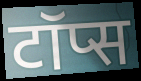
टॉप्स